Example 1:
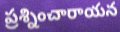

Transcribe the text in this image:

ప్రశ్నించారాయన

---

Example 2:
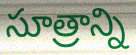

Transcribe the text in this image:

సూత్రాన్ని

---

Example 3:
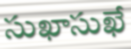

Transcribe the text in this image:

సుఖాసుఖే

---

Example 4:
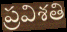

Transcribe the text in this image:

ప్రవిశతి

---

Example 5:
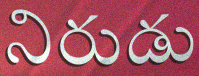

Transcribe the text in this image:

నిరుడు